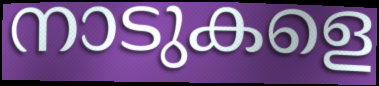
നാടുകളെ